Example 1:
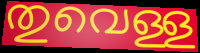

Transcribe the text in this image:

തുവെള്ള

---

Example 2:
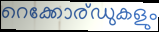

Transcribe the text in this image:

റെക്കോര്ഡുകളും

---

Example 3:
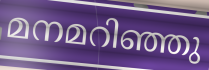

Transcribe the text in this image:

മനമറിഞ്ഞു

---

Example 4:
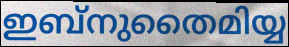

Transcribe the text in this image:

ഇബ്നുതൈമിയ്യ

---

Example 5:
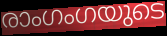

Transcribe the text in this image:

രാംഗംഗയുടെ